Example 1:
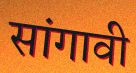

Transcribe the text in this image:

सांगावी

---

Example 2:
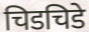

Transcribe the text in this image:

चिडचिडे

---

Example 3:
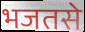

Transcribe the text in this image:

भजतसे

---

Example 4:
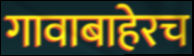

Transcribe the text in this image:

गावाबाहेरच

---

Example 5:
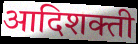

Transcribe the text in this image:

आदिशक्ती